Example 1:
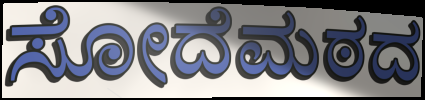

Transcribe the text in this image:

ಸೋದೆಮಠದ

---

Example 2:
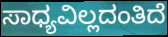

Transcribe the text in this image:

ಸಾಧ್ಯವಿಲ್ಲದಂತಿದೆ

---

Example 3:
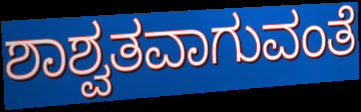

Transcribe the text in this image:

ಶಾಶ್ವತವಾಗುವಂತೆ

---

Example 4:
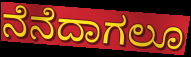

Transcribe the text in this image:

ನೆನೆದಾಗಲೂ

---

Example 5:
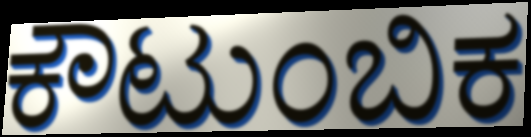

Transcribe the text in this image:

ಕೌಟುಂಬಿಕ